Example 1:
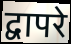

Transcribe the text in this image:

द्वापरे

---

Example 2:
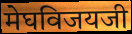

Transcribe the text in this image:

मेघविजयजी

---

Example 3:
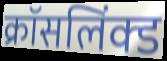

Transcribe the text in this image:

क्रॉसलिंक्ड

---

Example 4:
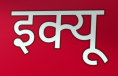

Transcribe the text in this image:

इक्यू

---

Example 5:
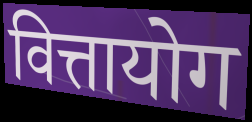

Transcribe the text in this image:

वित्तायोग